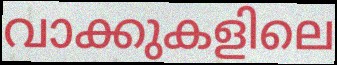
വാക്കുകളിലെ